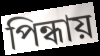
পিন্ধায়